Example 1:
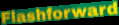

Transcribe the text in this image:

Flashforward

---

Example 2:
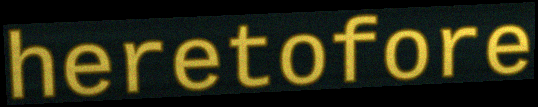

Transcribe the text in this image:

heretofore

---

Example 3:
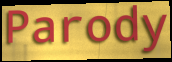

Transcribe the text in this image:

Parody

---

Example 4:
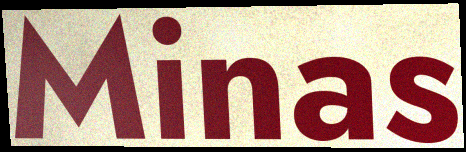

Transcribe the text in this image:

Minas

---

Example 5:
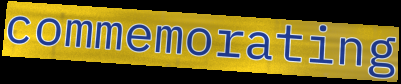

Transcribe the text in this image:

commemorating